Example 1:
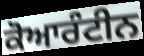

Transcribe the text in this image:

ਕੋਆਰੰਟੀਨ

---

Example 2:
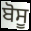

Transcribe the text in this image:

ਬੋਸੂ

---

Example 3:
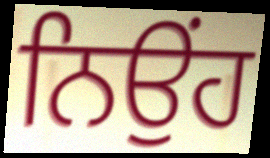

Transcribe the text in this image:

ਨਿਉਂਹ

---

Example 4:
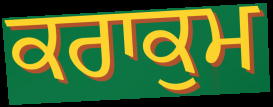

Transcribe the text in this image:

ਕਰਾਕੁਮ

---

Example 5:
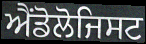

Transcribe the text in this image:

ਐਂਡੋਲੋਜਿਸਟ